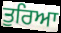
ਤੁਰਿਆ